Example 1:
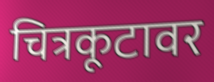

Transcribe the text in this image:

चित्रकूटावर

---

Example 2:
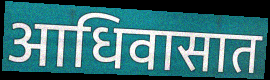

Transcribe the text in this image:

आधिवासात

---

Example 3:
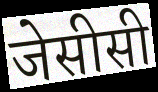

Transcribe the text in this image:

जेसीसी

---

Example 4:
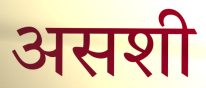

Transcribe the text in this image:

असशी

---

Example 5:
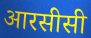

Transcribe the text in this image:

आरसीसी